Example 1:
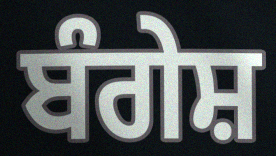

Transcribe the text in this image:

ਬੰਗੇਸ਼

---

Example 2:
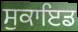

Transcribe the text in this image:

ਸੁਕਾਇਡ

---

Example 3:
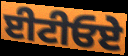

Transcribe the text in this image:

ਈਟੀਓਏ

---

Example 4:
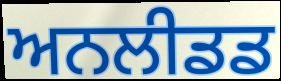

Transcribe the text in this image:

ਅਨਲੀਡਡ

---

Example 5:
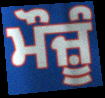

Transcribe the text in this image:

ਮੌਜ਼ੂੰ